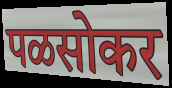
पळसोकर